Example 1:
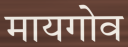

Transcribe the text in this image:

मायगोव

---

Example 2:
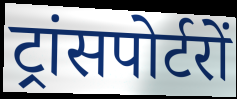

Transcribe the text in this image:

ट्रांसपोर्टरों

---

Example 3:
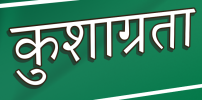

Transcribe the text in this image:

कुशाग्रता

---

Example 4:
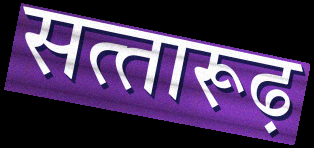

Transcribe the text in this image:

सत्‍तारूढ़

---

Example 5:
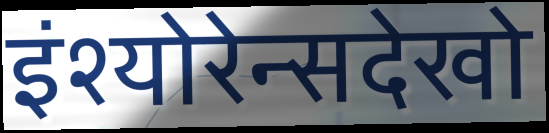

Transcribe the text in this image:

इंश्योरेन्सदेखो